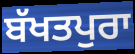
ਬੱਖਤਪੁਰਾ